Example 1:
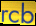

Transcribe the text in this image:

rcb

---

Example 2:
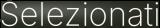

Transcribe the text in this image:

Selezionati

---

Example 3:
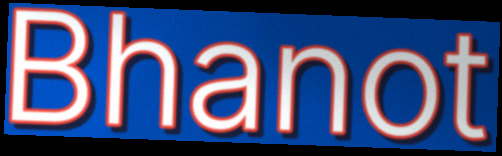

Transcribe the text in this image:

Bhanot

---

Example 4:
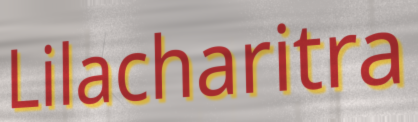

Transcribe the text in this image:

Lilacharitra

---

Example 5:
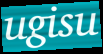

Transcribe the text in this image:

ugisu